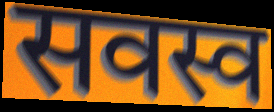
सवस्व